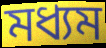
মধ্যম